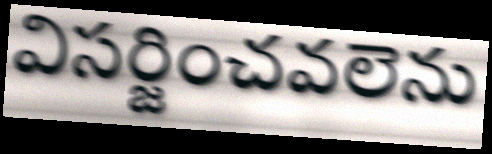
విసర్జించవలెను